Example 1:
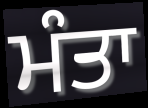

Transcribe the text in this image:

ਮੰਤਾ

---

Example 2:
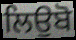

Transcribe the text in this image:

ਲਿਉਬੋ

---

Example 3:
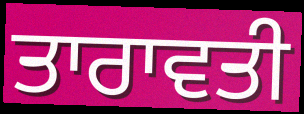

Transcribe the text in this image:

ਤਾਰਾਵਤੀ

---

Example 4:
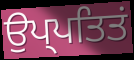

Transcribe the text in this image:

ਉਪ੍ਪਤਿਤਂ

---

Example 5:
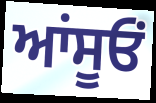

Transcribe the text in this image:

ਆਂਸੂਓਂ